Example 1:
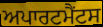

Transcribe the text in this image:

ਅਪਾਰਟਮੈਂਟਸ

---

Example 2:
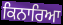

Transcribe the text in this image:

ਕਿਨਾਰਿਆ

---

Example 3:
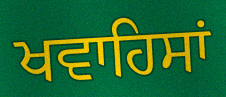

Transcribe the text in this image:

ਖਵਾਹਿਸਾਂ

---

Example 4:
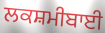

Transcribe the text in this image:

ਲਕਸ਼ਮੀਬਾਈ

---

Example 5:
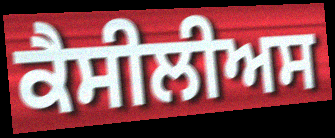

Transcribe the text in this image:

ਕੈਸੀਲੀਅਸ